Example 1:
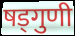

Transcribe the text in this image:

षड्गुणी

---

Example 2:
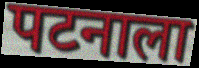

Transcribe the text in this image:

पटनाला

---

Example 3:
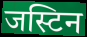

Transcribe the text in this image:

जस्टिन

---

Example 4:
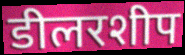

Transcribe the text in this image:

डीलरशीप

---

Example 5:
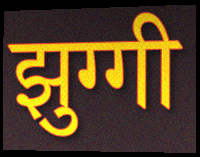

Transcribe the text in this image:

झुग्गी